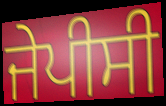
ਜੇਪੀਸੀ